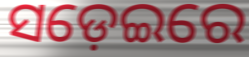
ସଡ଼େଇରେ